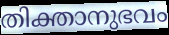
തിക്താനുഭവം